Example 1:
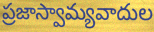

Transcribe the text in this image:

ప్రజాస్వామ్యవాదుల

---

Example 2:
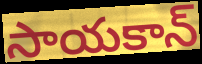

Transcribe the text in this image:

సాయకాన్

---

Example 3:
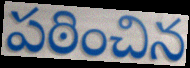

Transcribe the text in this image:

పఠించిన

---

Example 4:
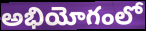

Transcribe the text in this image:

అభియోగంలో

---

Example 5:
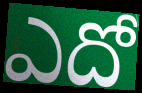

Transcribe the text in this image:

ఎదో